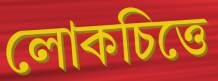
লোকচিত্তে